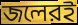
জলেরই